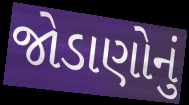
જોડાણોનું